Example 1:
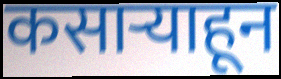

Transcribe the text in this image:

कसाऱ्याहून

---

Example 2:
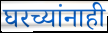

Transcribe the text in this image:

घरच्यांनाही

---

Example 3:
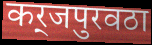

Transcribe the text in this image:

कर्जपुरवठा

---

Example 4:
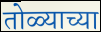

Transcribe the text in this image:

तोळ्याच्या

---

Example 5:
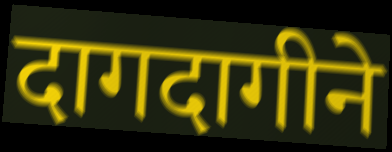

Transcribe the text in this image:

दागदागीने